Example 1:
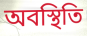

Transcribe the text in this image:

অবস্থিতি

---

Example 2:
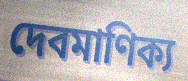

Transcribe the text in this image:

দেবমাণিক্য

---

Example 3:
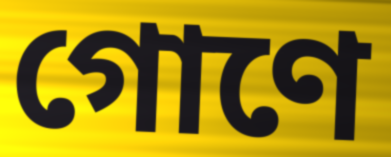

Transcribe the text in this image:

গোণে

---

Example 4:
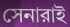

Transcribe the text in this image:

সেনারাই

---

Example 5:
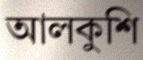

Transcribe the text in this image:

আলকুশি